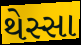
થેસ્સા